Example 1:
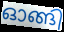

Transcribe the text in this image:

ഓങ്ങി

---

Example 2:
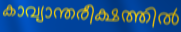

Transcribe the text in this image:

കാവ്യാന്തരീക്ഷത്തിൽ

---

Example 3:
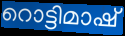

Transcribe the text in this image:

റൊട്ടിമാഷ്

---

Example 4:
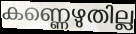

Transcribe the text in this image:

കണ്ണെഴുതില്ല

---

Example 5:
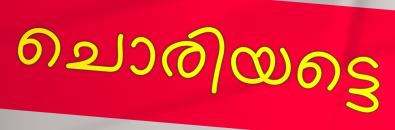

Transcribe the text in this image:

ചൊരിയട്ടെ